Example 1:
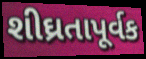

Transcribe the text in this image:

શીઘ્રતાપૂર્વક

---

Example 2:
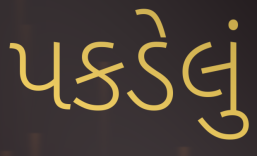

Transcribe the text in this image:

પકડેલું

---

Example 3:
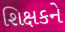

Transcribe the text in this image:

શિક્ષકને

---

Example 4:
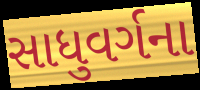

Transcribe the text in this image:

સાધુવર્ગના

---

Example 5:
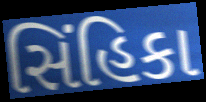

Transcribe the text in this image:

સિંહિકા